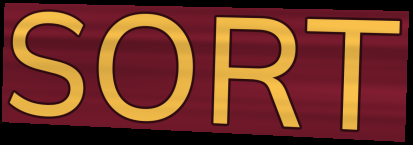
SORT